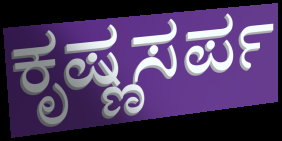
ಕೃಷ್ಣಸರ್ಪ